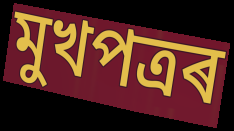
মুখপত্ৰৰ